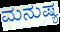
ಮನುಷ್ಯ